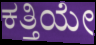
ಕತ್ತಿಯೇ